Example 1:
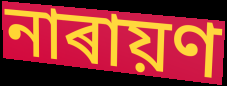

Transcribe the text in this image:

নাৰায়ণ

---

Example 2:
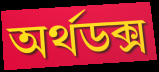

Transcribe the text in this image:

অৰ্থডক্স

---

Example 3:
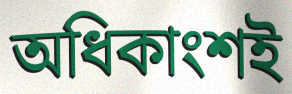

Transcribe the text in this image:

অধিকাংশই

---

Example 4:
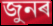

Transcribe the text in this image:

জুনৰ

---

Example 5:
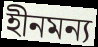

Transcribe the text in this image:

হীনমন্য